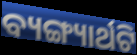
ବ୍ୟଙ୍ଗ୍ୟାର୍ଥଟି